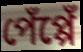
পেঁপ্পেঁ